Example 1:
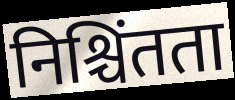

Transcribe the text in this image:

निश्चिंतता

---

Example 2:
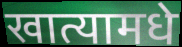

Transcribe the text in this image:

खात्यामधे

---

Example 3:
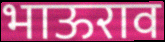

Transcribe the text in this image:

भाऊराव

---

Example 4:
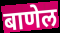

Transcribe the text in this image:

बाणेल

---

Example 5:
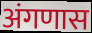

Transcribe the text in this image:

अंगणास